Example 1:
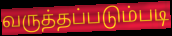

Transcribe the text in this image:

வருத்தப்படும்படி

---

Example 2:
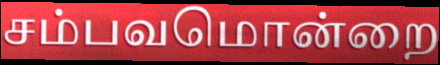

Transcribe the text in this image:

சம்பவமொன்றை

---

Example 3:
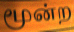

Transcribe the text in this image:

மூன்ற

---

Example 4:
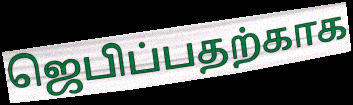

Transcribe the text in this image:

ஜெபிப்பதற்காக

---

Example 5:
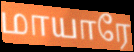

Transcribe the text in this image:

மாயாரே